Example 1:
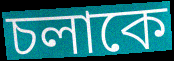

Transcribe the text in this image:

চলাকে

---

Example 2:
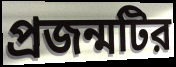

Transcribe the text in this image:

প্রজন্মটির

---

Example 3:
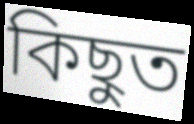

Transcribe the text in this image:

কিছুত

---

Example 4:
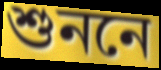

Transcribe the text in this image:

শুননে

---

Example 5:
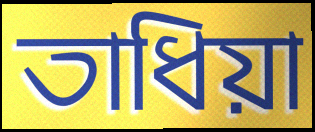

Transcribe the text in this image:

তাধিয়া